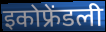
इकोफ्रेंडली